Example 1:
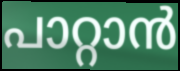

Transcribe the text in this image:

പാറ്റാൻ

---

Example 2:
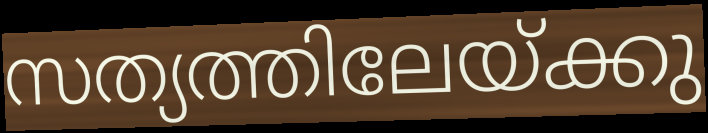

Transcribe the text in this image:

സത്യത്തിലേയ്ക്കു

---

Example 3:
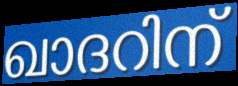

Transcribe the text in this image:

ഖാദറിന്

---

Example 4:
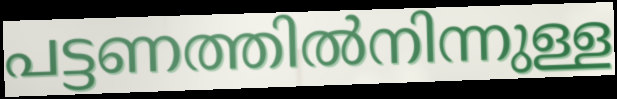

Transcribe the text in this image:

പട്ടണത്തിൽനിന്നുള്ള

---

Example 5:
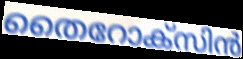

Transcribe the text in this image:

തൈറോക്സിൻ